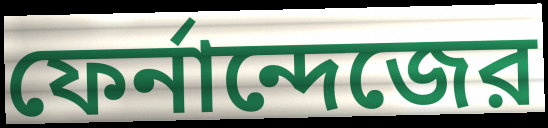
ফের্নান্দেজের